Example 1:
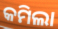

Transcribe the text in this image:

କମିଲା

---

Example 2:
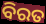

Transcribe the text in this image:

ବିରତ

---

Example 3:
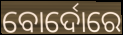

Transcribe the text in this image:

ବୋର୍ଦୋରେ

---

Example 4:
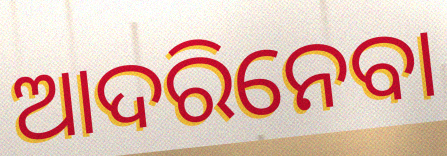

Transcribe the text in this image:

ଆଦରିନେବା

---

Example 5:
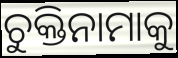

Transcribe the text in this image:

ଚୁକ୍ତିନାମାକୁ